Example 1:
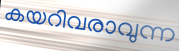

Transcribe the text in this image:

കയറിവരാവുന്ന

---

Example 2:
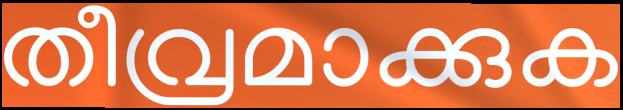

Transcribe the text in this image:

തീവ്രമാക്കുക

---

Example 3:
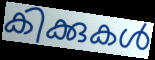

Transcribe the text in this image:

കിക്കുകൾ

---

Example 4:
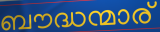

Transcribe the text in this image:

ബൗദ്ധന്മാര്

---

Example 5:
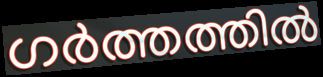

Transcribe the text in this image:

ഗർത്തത്തിൽ